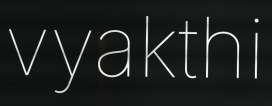
vyakthi